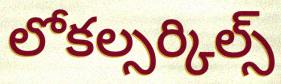
లోకల్సర్కిల్స్